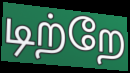
டிற்றே